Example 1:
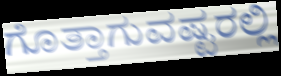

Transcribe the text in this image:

ಗೊತ್ತಾಗುವಷ್ಟರಲ್ಲಿ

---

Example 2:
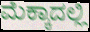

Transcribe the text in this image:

ಮೆಕ್ಕಾದಲ್ಲಿ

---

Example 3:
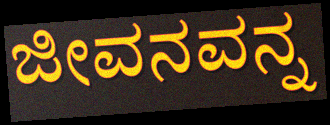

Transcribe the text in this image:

ಜೀವನವನ್ನ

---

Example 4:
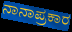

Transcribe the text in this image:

ನಾನಾಪ್ರಕಾರ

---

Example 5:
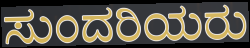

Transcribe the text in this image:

ಸುಂದರಿಯರು